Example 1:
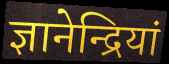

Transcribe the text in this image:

ज्ञानेन्द्रियां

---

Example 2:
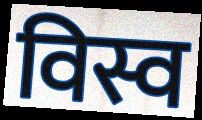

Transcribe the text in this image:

विस्व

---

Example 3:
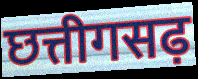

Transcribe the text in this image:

छत्तीगसढ़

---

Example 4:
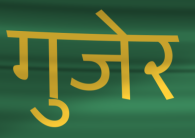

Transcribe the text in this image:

गुजेर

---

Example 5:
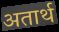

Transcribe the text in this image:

अतार्थ